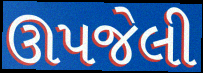
ઊપજેલી